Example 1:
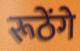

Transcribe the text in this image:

रूठेंगे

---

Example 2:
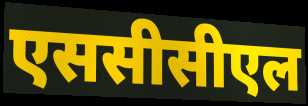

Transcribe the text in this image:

एससीसीएल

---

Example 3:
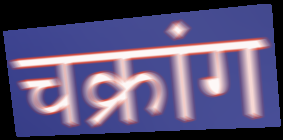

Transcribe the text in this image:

चक्रांग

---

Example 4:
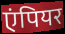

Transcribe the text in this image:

एंपियर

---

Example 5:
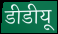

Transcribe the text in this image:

डीडीयू